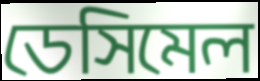
ডেসিমেল